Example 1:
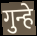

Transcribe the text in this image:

गुन्हे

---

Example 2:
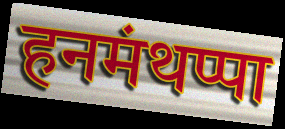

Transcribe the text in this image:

हनमंथप्पा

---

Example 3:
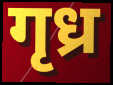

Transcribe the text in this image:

गृध्र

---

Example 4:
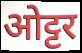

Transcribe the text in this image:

ओट्टर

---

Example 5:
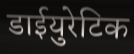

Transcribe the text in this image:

डाईयुरेटिक